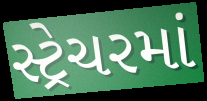
સ્ટ્રેચરમાં